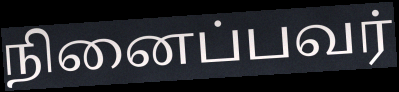
நினைப்பவர்